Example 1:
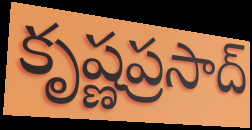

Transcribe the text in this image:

కృష్ణప్రసాద్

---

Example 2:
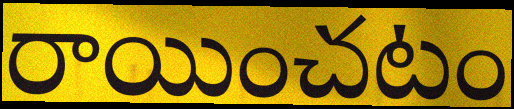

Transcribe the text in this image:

రాయించటం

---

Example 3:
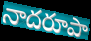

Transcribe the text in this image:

నాదరూపా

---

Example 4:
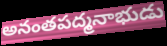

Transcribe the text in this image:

అనంతపద్మనాభుడు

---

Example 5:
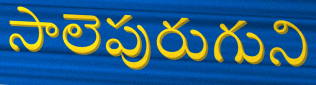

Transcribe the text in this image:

సాలెపురుగుని